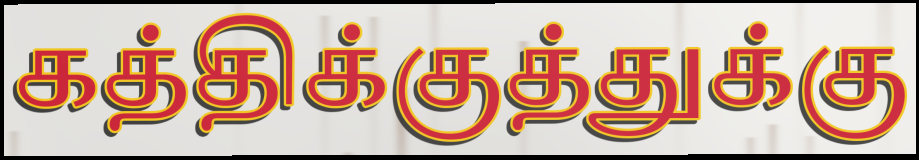
கத்திக்குத்துக்கு